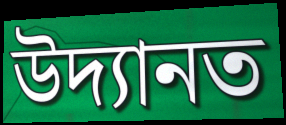
উদ্যানত